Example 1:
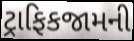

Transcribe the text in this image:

ટ્રાફિકજામની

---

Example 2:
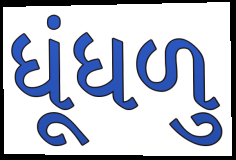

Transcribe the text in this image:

ધૂંધળુ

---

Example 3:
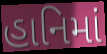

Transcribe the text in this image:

હાનિમાં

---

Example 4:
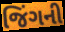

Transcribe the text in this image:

જિંગની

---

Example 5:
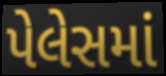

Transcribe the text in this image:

પેલેસમાં